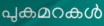
പുകമറകൾ